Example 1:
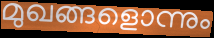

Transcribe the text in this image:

മുഖങ്ങളൊന്നും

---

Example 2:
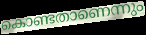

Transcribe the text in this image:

കൊണ്ടതാണെന്നും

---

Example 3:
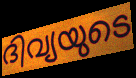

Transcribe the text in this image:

ദിവ്യയുടെ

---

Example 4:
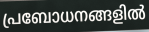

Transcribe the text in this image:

പ്രബോധനങ്ങളിൽ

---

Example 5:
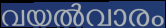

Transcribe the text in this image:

വയൽവാരം